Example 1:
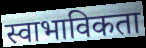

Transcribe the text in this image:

स्वाभाविकता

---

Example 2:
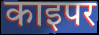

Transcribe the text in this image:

काइपर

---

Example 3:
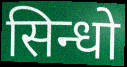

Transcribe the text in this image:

सिन्धो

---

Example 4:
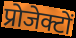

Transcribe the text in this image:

प्रोजेक्टों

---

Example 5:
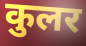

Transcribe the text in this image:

कुलर